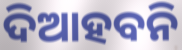
ଦିଆହବନି